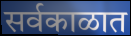
सर्वकाळात